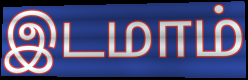
இடமாம்